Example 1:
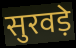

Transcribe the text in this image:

सुरवड़े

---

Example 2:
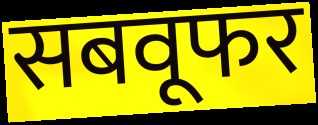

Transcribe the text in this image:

सबवूफर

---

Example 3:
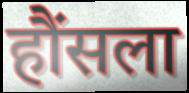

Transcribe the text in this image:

हौंसला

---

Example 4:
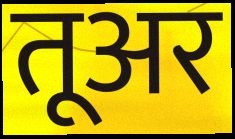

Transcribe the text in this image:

तूअर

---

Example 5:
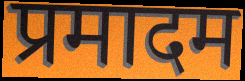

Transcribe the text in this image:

प्रमादम